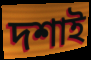
দশাই